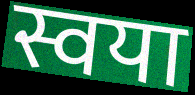
स्वया